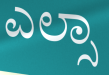
ಎಲ್ಸಾ